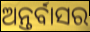
ଅନ୍ତର୍ବାସର